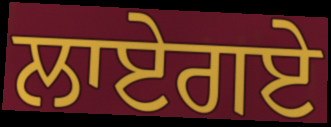
ਲਾਏਗਏ